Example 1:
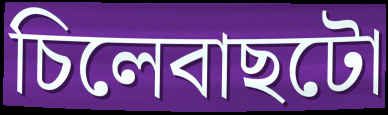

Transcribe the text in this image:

চিলেবাছটো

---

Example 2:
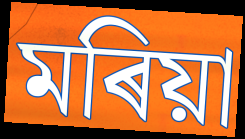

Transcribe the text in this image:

মৰিয়া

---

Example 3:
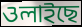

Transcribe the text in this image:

ওলাইছে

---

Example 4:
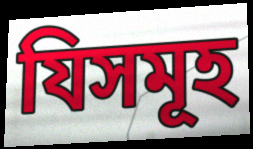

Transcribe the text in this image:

যিসমূহ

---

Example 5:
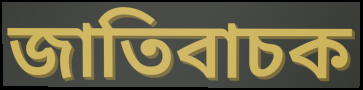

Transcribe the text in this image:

জাতিবাচক